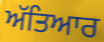
ਅੱਤਿਆਰ